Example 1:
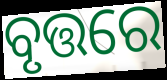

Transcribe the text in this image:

ବୃତ୍ତରେ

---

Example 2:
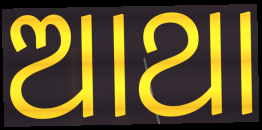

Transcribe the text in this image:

ଆଥା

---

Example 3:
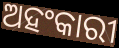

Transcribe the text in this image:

ଅହଂକାରୀ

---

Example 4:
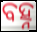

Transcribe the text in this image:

ବହ୍ନ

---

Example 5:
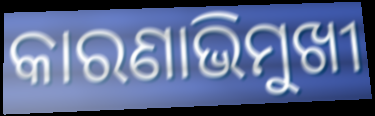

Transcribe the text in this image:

କାରଣାଭିମୁଖୀ